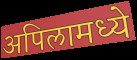
अपिलामध्ये